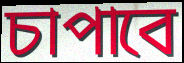
চাপাবে